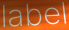
label